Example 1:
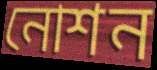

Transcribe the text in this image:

নোশন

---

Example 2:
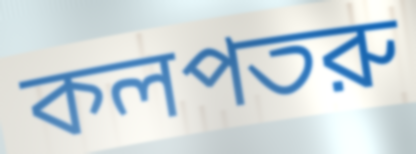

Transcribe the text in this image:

কলপতরু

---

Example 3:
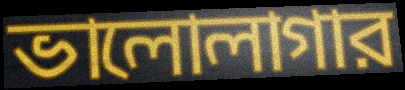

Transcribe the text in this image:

ভালোলাগার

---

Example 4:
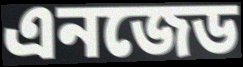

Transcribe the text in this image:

এনজেড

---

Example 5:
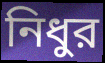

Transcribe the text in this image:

নিধুর